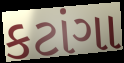
કટાંગા